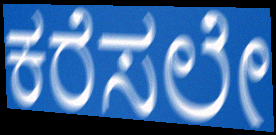
ಕರೆಸಲೇ